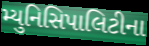
મ્યુનિસિપાલિટીના